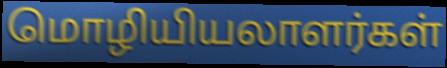
மொழியியலாளர்கள்